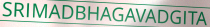
SRIMADBHAGAVADGITA